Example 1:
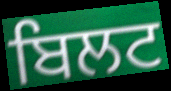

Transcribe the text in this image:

ਬਿਲਟ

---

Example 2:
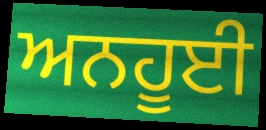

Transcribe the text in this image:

ਅਨਹੂਈ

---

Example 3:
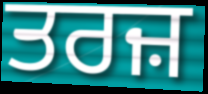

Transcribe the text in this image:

ਤਰਜ਼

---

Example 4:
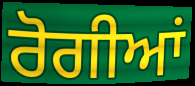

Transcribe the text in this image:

ਰੋਗੀਆਂ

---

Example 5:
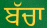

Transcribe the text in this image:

ਬੱਚਾ